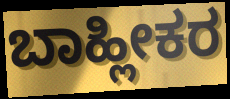
ಬಾಹ್ಲೀಕರ